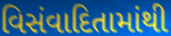
વિસંવાદિતામાંથી